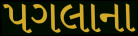
પગલાના